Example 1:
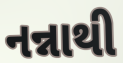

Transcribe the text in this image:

નન્નાથી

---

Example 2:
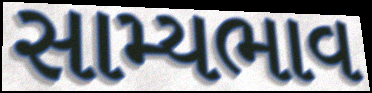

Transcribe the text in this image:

સામ્યભાવ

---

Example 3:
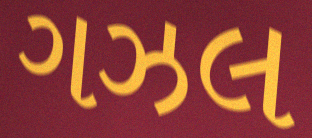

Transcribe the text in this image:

ગઝલ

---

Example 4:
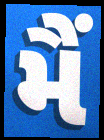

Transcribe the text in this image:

મૈં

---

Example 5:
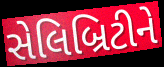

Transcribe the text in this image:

સેલિબ્રિટીને